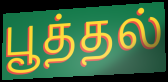
பூத்தல்